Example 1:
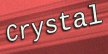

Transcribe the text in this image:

Crystal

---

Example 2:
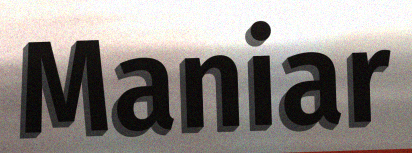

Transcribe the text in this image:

Maniar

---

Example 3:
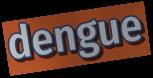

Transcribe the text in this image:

dengue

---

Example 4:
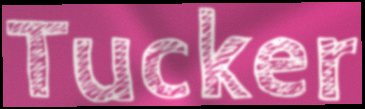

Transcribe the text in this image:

Tucker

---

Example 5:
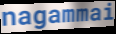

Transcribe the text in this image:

nagammai